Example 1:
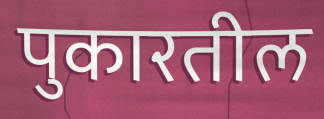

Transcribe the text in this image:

पुकारतील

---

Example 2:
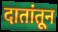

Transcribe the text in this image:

दातांतून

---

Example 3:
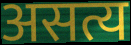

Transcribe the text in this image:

असत्य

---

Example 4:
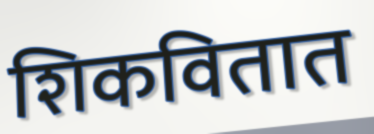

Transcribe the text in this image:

शिकवितात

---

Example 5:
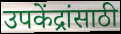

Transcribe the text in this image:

उपकेंद्रांसाठी